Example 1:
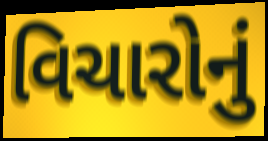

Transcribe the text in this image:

વિચારોનું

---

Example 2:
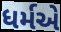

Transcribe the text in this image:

ધર્મએ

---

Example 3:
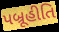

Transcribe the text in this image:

પબ્રૂહીતિ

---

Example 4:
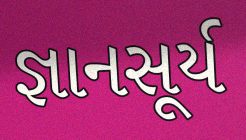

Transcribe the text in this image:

જ્ઞાનસૂર્ય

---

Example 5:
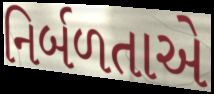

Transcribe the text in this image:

નિર્બળતાએ